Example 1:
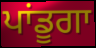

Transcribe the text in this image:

ਪਾਂਡੂਗਾ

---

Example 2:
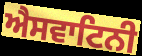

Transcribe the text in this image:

ਐਸਵਾਟਿਨੀ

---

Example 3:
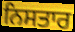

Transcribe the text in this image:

ਨਿਸਤਾਰ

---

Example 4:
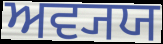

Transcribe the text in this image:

ਅਵ੍ਯਯ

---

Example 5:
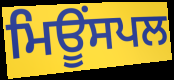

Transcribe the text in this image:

ਮਿਊਂਸਪਲ